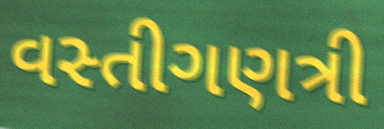
વસ્તીગણત્રી